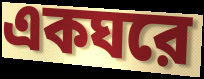
একঘরে